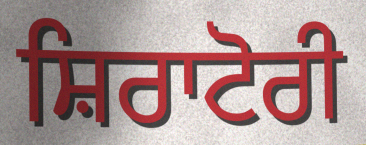
ਸ਼ਿਰਾਟੋਰੀ